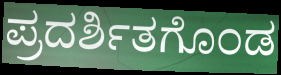
ಪ್ರದರ್ಶಿತಗೊಂಡ